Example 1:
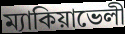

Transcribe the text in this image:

ম্যাকিয়াভেলী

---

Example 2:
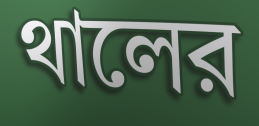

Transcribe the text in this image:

থালের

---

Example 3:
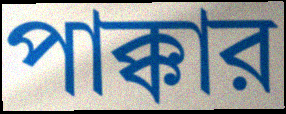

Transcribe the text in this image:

পাক্কার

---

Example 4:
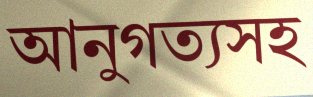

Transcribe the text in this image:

আনুগত্যসহ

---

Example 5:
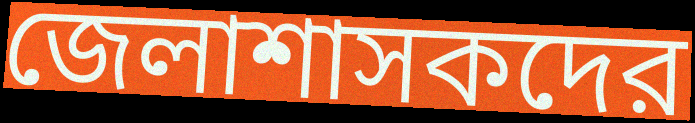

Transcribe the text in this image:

জেলাশাসকদের